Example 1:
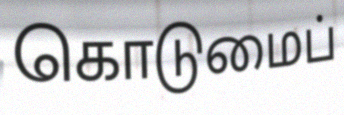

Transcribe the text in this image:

கொடுமைப்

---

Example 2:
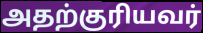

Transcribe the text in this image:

அதற்குரியவர்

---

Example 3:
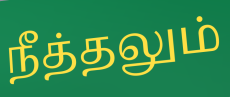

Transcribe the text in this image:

நீத்தலும்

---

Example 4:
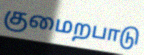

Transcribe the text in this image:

குமைறபாடு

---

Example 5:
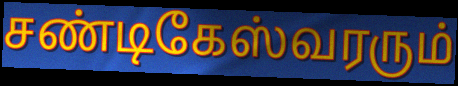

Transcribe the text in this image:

சண்டிகேஸ்வரரும்